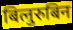
बिलुरुबिन